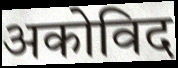
अकोविद